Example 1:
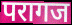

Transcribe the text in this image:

परागज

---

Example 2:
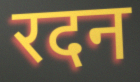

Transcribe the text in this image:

रदन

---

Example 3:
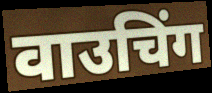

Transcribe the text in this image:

वाउचिंग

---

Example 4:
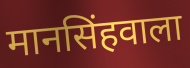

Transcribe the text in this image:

मानसिंहवाला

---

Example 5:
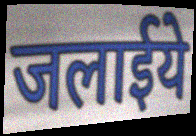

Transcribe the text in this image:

जलाईये